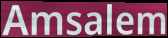
Amsalem